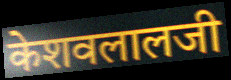
केशवलालजी